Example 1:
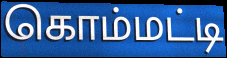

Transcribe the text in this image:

கொம்மட்டி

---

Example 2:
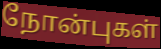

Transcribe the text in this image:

நோன்புகள்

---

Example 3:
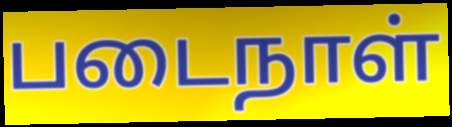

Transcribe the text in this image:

படைநாள்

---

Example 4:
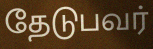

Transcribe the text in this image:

தேடுபவர்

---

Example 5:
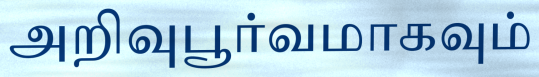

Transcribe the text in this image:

அறிவுபூர்வமாகவும்